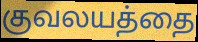
குவலயத்தை